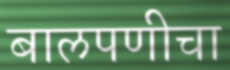
बालपणीचा